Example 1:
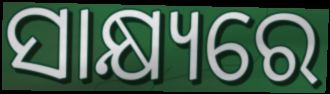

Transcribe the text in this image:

ସାକ୍ଷ୍ୟରେ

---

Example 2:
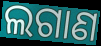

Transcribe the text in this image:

ଲଗାଣ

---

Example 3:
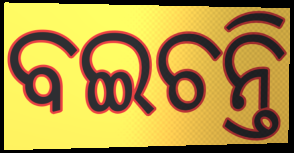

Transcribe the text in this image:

ବଇଚନ୍ତି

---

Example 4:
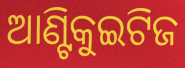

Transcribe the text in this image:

ଆଣ୍ଟିକୁଇଟିଜ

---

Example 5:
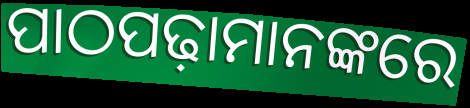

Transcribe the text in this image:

ପାଠପଢ଼ାମାନଙ୍କରେ